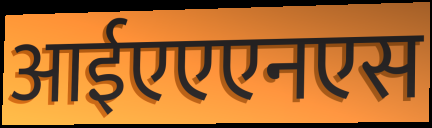
आईएएएनएस